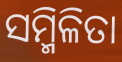
ସମ୍ମିଳିତା